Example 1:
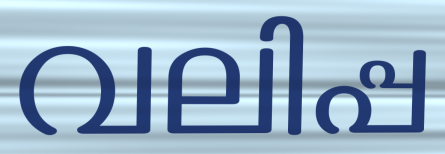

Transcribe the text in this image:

വലിപ്പ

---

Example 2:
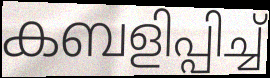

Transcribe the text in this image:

കബളിപ്പിച്ച്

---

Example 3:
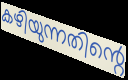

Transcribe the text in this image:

കഴിയുന്നതിന്റെ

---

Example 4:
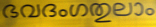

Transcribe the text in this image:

ഭവദംഗതുലാം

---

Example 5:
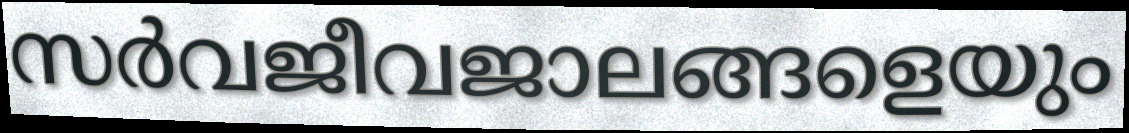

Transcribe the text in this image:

സർവജീവജാലങ്ങളെയും